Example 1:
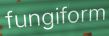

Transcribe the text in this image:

fungiform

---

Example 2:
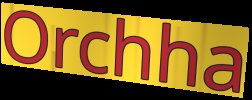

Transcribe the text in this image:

Orchha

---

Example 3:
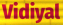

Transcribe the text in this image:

Vidiyal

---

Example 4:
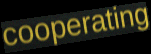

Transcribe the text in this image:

cooperating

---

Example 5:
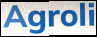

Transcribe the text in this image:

Agroli